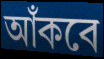
আঁকবে